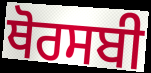
ਥੋਰਸਬੀ